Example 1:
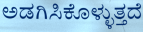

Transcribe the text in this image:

ಅಡಗಿಸಿಕೊಳ್ಳುತ್ತದೆ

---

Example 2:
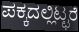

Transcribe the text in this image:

ಪಕ್ಕದಲ್ಲಿಟ್ಟರೆ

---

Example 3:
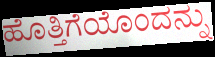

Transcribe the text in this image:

ಹೊತ್ತಿಗೆಯೊಂದನ್ನು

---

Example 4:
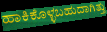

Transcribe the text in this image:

ಹಾಕಿಕೊಳ್ಳಬಹುದಾಗಿತ್ತು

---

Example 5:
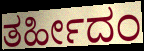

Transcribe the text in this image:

ತರ್ಹೀದಂ